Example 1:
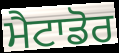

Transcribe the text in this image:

ਮੈਟਾਡੋਰ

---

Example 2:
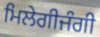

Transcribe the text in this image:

ਮਿਲੇਗੀਜੰਗੀ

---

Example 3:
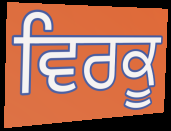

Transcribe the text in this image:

ਵਿਰਕੂ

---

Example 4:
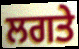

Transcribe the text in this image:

ਲਗਤੇ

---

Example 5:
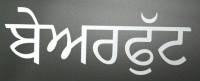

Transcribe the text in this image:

ਬੇਅਰਫੁੱਟ